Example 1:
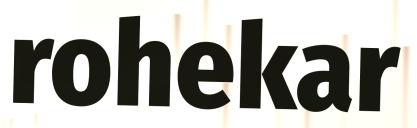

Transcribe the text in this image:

rohekar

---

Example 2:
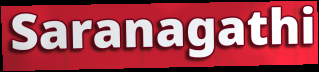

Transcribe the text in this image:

Saranagathi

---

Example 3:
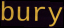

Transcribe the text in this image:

bury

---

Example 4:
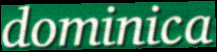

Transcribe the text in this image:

dominica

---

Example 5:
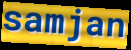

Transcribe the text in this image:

samjan